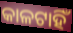
କାଳଟାହିଁ